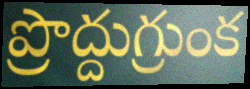
ప్రొద్దుగ్రుంక